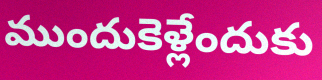
ముందుకెళ్లేందుకు